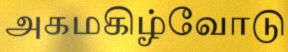
அகமகிழ்வோடு